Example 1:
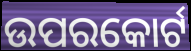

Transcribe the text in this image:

ଉପରକୋର୍ଟ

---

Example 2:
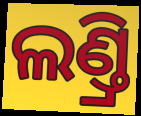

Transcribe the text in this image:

ଲଣ୍ତ୍ରି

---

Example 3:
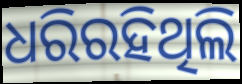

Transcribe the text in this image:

ଧରିରହିଥିଲି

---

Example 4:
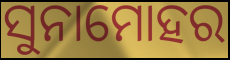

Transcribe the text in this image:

ସୁନାମୋହର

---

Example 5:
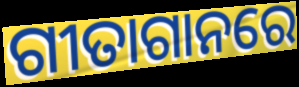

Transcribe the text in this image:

ଗୀତାଗାନରେ